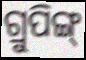
ଗ୍ରୁପିଙ୍ଗ୍